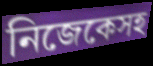
নিজেকেসহ